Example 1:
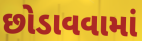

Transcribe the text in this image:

છોડાવવામાં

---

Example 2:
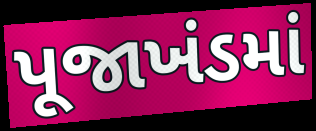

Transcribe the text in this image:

પૂજાખંડમાં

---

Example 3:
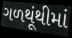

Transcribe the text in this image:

ગળથૂંથીમાં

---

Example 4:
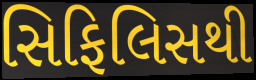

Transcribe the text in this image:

સિફિલિસથી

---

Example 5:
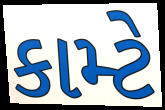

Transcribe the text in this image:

કામ્ટે